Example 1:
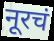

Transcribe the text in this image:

नूरचं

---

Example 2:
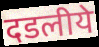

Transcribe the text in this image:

दडलीये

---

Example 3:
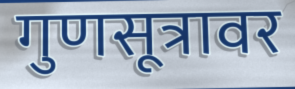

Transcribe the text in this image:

गुणसूत्रावर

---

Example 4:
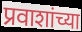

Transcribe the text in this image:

प्रवाशांच्या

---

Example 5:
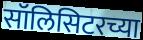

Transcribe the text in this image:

सॉलिसिटरच्या